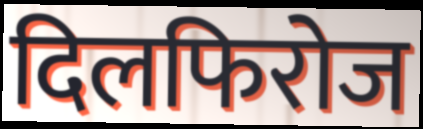
दिलफिरोज